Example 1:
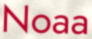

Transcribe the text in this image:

Noaa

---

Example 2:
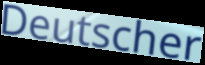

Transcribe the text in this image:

Deutscher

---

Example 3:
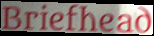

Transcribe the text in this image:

Briefhead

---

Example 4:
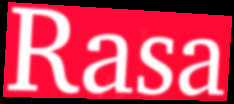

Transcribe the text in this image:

Rasa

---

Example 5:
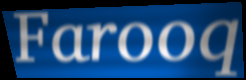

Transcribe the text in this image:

Farooq